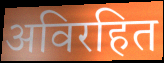
अविरहित